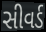
સીવર્ડ